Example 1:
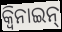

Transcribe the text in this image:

କ୍ୱିନାଇନ୍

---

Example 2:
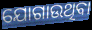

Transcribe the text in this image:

ଯୋଗାଉଥିବା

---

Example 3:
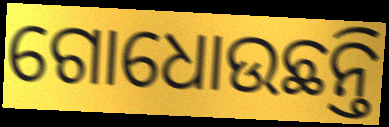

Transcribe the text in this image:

ଗୋଧୋଉଛନ୍ତି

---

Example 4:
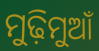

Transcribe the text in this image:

ମୁଢ଼ିମୁଆଁ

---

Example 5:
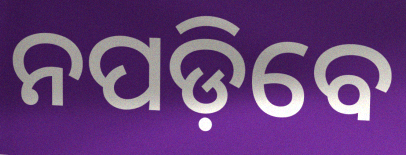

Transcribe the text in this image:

ନପଡ଼ିବେ